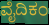
ವೈದಿಕಂ